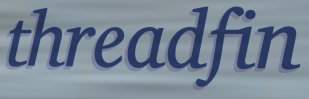
threadfin